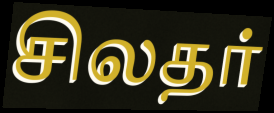
சிலதர்